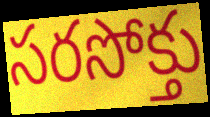
సరసోక్తు